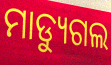
ମାଡ୍ୟୁଗଲ